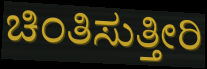
ಚಿಂತಿಸುತ್ತೀರಿ